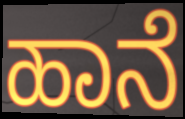
ಹಾನೆ